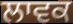
ਲਾਵਕ